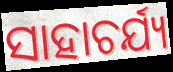
ସାହାଚର୍ଯ୍ୟ